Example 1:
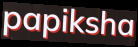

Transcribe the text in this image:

papiksha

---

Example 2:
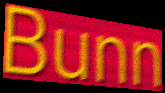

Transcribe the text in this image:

Bunn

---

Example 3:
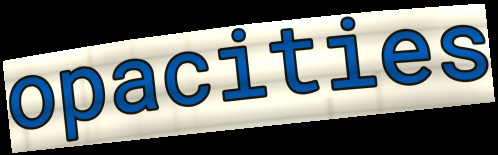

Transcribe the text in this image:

opacities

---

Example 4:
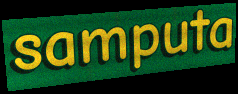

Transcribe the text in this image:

samputa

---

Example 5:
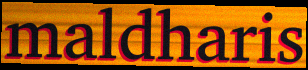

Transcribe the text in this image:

maldharis